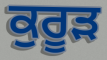
ਕੁਰੂੜ